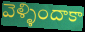
వెళ్ళిందాకా